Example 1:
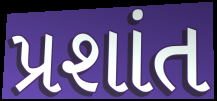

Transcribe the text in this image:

પ્રશાંત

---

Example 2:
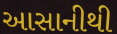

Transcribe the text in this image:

આસાનીથી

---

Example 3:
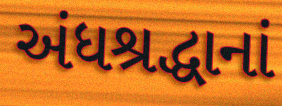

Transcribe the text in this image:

અંધશ્રદ્ધાનાં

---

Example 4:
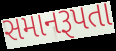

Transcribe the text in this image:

સમાનરૂપતા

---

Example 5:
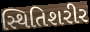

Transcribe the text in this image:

સ્થિતિશરીર